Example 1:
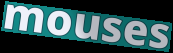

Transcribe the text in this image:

mouses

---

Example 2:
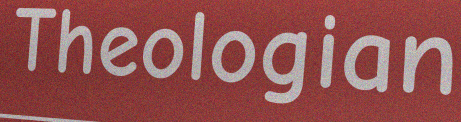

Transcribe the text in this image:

Theologian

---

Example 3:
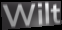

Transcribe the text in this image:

Wilt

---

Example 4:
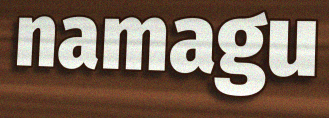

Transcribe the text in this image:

namagu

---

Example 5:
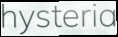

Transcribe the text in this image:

hysteria